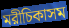
মরীচিকাসম